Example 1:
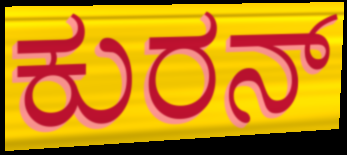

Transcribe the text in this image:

ಕುರನ್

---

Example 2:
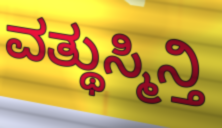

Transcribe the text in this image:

ವತ್ಥುಸ್ಮಿನ್ತಿ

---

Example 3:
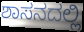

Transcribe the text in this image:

ಶಾಸನದಲ್ಲಿ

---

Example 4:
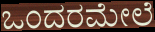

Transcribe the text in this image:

ಒಂದರಮೇಲೆ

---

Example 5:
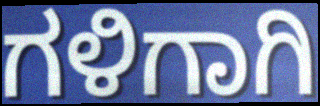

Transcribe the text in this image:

ಗಳಿಗಾಗಿ